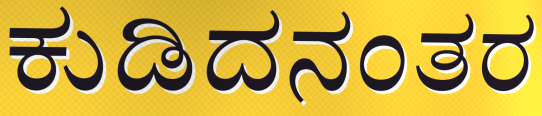
ಕುಡಿದನಂತರ